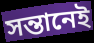
সন্তানেই